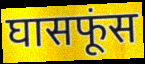
घासफूंस